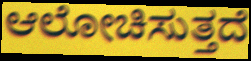
ಆಲೋಚಿಸುತ್ತದೆ